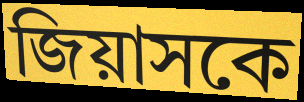
জিয়াসকে